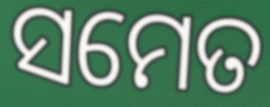
ସମେତ